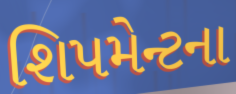
શિપમેન્ટના